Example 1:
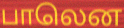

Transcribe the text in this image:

பாலென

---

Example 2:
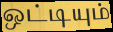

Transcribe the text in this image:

ஒட்டியும்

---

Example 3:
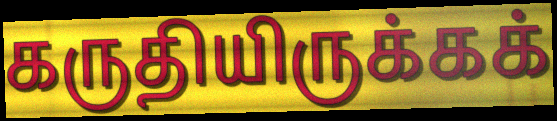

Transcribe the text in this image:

கருதியிருக்கக்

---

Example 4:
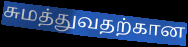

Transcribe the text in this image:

சுமத்துவதற்கான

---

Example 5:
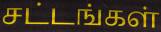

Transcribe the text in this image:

சட்டங்கள்